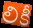
లికీ